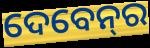
ଦେବେନ୍‌ର